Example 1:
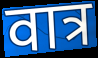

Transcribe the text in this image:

वात्र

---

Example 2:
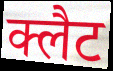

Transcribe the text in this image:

क्लैट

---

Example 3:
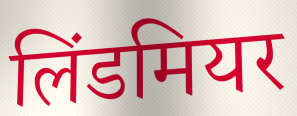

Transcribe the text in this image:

लिंडमियर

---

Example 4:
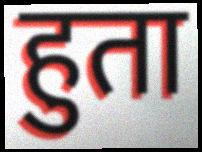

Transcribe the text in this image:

हुता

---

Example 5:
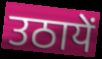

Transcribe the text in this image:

उठायें